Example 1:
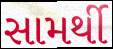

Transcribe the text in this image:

સામર્થી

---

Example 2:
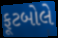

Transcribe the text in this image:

ફૂટબોલે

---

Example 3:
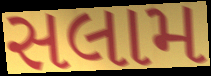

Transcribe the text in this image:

સલામ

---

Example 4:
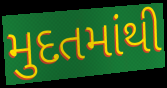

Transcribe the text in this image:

મુદતમાંથી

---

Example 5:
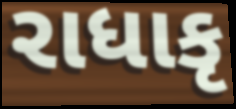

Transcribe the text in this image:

રાધાકૃ